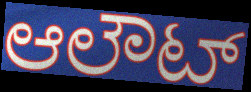
ಆಲೌಟ್